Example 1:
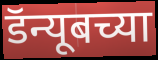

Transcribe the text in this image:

डॅन्यूबच्या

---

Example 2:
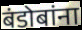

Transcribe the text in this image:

बंडोबांना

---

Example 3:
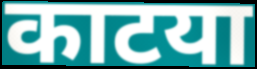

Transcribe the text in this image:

काटया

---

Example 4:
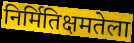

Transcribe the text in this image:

निर्मितिक्षमतेला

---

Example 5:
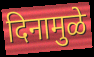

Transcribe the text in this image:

दिनामुळे